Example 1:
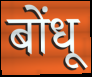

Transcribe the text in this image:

बोंधू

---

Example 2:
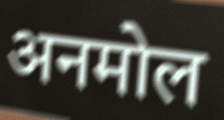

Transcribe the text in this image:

अनमोल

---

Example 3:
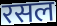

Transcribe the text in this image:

रसल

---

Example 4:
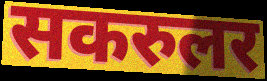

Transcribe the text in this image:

सकरुलर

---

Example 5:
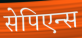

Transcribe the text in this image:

सेपिएन्स